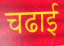
चढाई